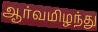
ஆர்வமிழந்து